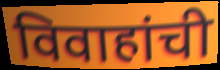
विवाहांची